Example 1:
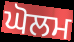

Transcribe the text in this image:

ਘੋਲਮ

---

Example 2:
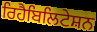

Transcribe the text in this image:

ਰਿਹੈਬਿਲਿਟੇਸ਼ਨ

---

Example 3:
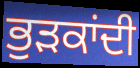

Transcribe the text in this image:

ਭੁੜਕਾਂਦੀ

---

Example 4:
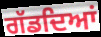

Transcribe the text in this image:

ਗੱਡਦਿਆਂ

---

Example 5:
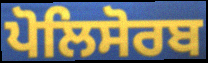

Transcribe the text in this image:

ਪੋਲਿਸੋਰਬ